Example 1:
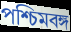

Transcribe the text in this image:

পশ্চিমবঙ্গ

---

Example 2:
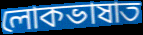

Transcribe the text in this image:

লোকভাষাত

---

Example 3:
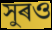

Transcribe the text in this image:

সুৰও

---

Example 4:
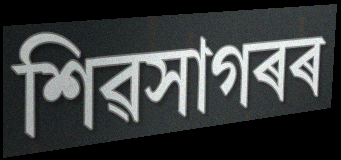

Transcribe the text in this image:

শিৱসাগৰৰ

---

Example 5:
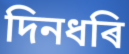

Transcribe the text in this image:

দিনধৰি